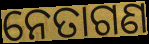
ନେତାଗଣ